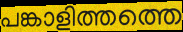
പങ്കാളിത്തത്തെ